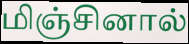
மிஞ்சினால்